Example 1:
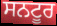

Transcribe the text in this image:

ਸਨਟੂਰ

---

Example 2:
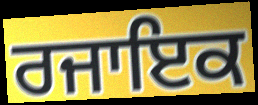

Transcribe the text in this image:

ਰਜਾਇਕ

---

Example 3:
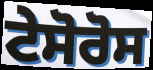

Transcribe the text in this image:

ਟੇਸੋਰੋਸ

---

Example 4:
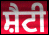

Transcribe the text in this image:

ਸ਼ੈਟੀ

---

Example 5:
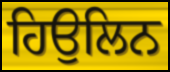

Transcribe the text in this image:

ਹਿਉਲਿਨ